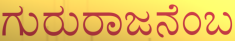
ಗುರುರಾಜನೆಂಬ